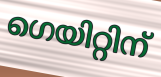
ഗെയിറ്റിന്